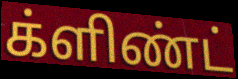
க்ளிண்ட்